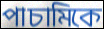
পাচামিকে